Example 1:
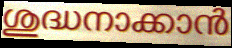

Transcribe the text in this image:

ശുദ്ധനാക്കാൻ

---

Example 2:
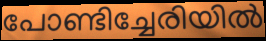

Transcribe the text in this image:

പോണ്ടിച്ചേരിയിൽ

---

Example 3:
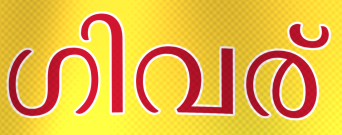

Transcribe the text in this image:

ഗിവര്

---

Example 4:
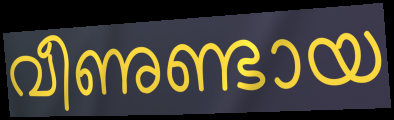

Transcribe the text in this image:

വീണുണ്ടായ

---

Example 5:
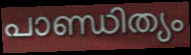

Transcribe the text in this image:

പാണ്ഡിത്യം